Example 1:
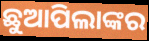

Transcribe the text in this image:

ଛୁଆପିଲାଙ୍କର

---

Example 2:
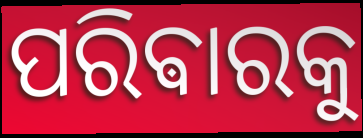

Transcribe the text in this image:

ପରିଵାରକୁ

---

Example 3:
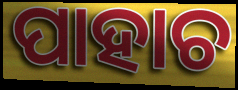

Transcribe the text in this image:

ପାହାଚ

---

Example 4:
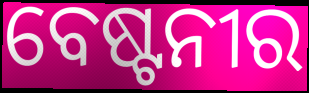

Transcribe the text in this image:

ବେଷ୍ଟନୀର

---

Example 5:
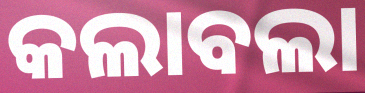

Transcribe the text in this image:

କଲାବଲା